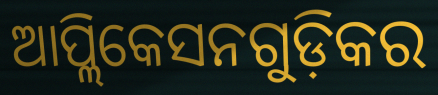
ଆପ୍ଲିକେସନଗୁଡ଼ିକର